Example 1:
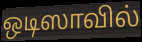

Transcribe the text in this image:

ஒடிஸாவில்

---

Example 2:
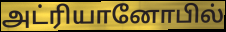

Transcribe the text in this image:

அட்ரியானோபில்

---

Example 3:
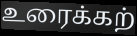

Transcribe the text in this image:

உரைக்கற்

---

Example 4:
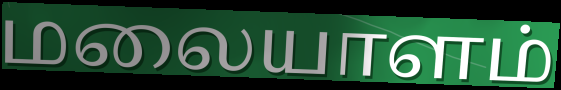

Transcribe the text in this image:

மலையாளம்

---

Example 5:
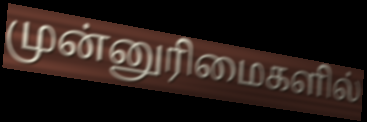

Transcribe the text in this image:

முன்னுரிமைகளில்